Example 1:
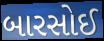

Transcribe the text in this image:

બારસોઈ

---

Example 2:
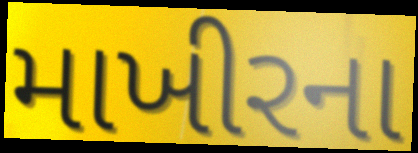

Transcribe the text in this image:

માખીરના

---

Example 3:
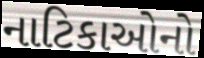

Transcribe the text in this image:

નાટિકાઓનો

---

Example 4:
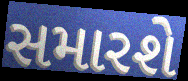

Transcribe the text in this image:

સમારશે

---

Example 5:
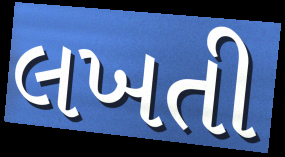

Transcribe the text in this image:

લખતી